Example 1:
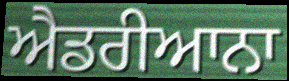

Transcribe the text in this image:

ਐਡਰੀਆਨਾ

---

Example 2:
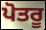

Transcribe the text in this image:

ਪੋਤਰੂ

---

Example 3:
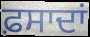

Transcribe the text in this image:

ਫ਼ਸਾਦਾਂ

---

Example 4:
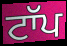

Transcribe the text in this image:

ਟਾੱਪ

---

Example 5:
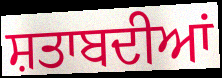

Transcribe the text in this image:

ਸ਼ਤਾਬਦੀਆਂ